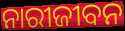
ନାରୀଜୀବନ